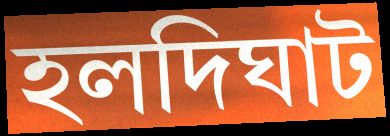
হলদিঘাট